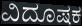
ವಿದೂಷಕ